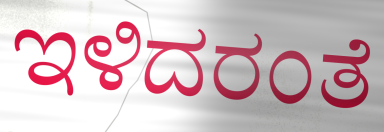
ಇಳಿದರಂತೆ